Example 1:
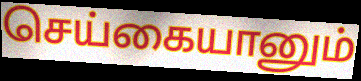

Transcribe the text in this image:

செய்கையானும்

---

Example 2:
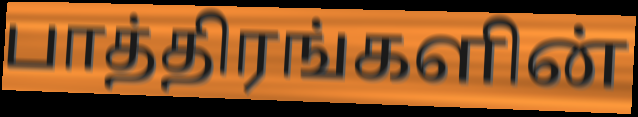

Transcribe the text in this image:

பாத்திரங்களின்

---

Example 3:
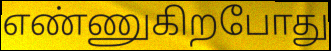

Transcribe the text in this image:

எண்ணுகிறபோது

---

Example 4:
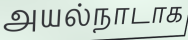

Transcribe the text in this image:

அயல்நாடாக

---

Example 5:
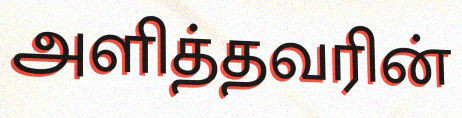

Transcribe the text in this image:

அளித்தவரின்